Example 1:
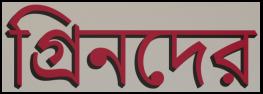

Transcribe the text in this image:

গ্রিনদের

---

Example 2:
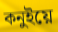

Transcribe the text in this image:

কনুইয়ে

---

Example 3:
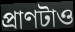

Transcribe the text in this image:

প্রাণটাও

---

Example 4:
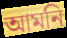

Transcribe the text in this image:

আমনি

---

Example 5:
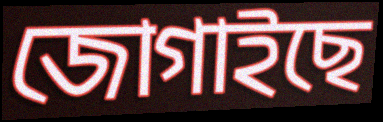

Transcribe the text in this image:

জোগাইছে